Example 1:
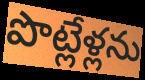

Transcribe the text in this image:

పొట్లేళ్లను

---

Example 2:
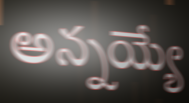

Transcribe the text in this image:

అన్నయ్యే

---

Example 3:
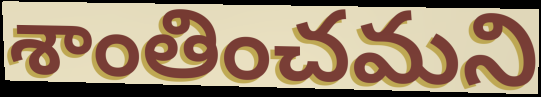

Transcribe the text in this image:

శాంతించమని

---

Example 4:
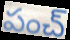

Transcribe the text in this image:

పంచ్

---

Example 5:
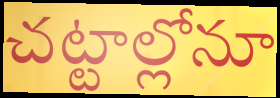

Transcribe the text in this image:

చట్టాల్లోనూ